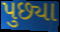
પુછ્યા